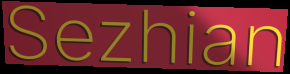
Sezhian